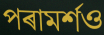
পৰামৰ্শও